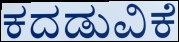
ಕದಡುವಿಕೆ